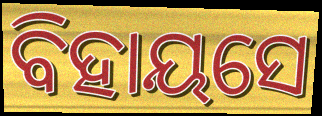
ବିହାୟସେ